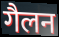
गैलन